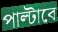
পাল্টাবে